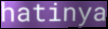
hatinya